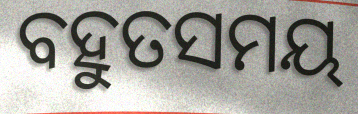
ବହୁତସମୟ